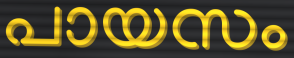
പായസം